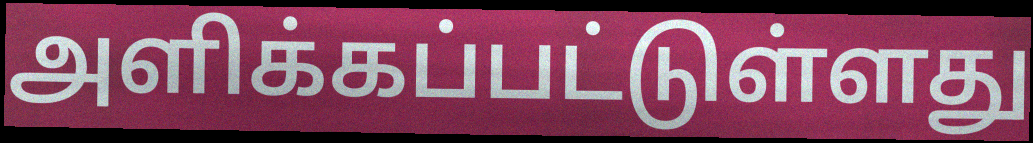
அளிக்கப்பட்டுள்ளது